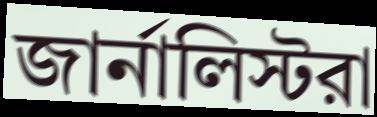
জার্নালিস্টরা